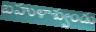
బహుళాశ్వుండు